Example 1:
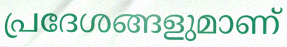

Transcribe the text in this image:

പ്രദേശങ്ങളുമാണ്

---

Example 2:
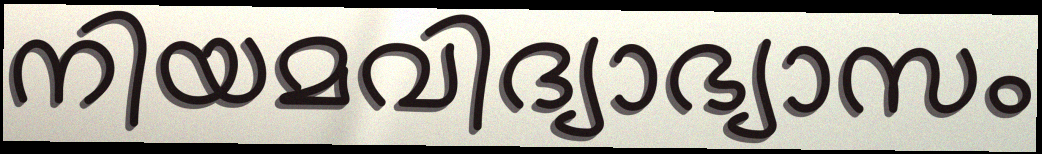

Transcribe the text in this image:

നിയമവിദ്യാഭ്യാസം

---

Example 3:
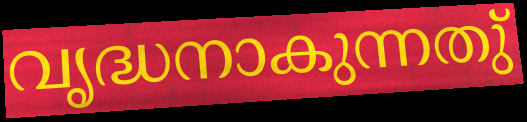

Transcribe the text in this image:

വൃദ്ധനാകുന്നതു്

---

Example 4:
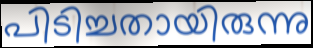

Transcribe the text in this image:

പിടിച്ചതായിരുന്നു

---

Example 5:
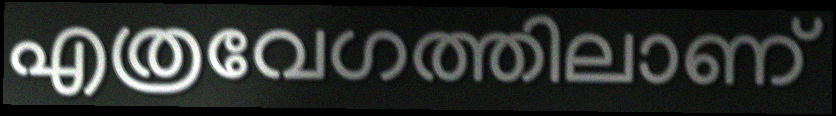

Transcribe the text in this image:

എത്രവേഗത്തിലാണ്